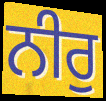
ਨੀਰੁ